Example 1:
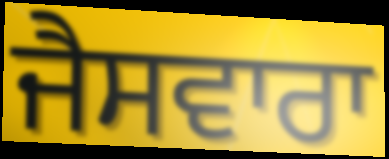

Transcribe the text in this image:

ਜੈਸਵਾਰਾ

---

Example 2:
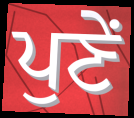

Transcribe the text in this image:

ਪੁਣੇਂ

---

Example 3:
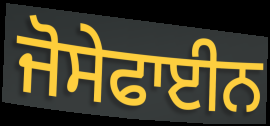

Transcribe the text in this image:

ਜੋਸੇਫਾਈਨ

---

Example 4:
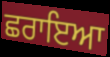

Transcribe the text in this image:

ਛਰਾਇਆ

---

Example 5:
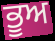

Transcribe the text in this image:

ਭੂਅ